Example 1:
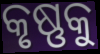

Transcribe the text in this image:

କୃଷ୍ଣକୁ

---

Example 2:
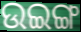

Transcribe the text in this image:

ଉଇଙ୍ଗ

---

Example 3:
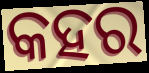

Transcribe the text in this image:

କହର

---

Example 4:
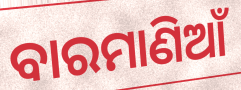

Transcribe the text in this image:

ବାରମାଣିଆଁ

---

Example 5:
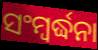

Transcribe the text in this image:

ସଂମ୍ବର୍ଦ୍ଧନା